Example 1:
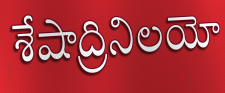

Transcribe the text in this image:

శేషాద్రినిలయో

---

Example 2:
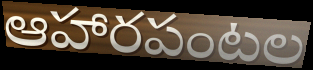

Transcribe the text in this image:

ఆహారపంటల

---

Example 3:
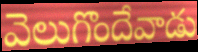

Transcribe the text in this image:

వెలుగొందేవాడు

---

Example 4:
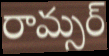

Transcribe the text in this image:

రామ్సర్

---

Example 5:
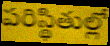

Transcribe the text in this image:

పరిస్థితుల్లో